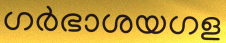
ഗർഭാശയഗള